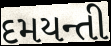
દમયન્તી